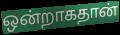
ஒன்றாகதான்